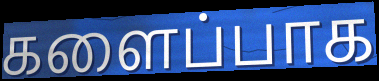
களைப்பாக